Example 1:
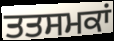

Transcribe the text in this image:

ਤਤਸਮਕਾਂ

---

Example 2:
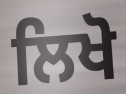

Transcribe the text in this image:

ਲਿਖੋ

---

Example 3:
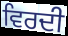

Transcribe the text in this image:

ਵਿਰਦੀ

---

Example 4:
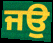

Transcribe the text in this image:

ਜਉ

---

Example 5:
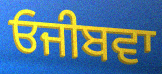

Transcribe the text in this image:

ਓਜੀਬਵਾ